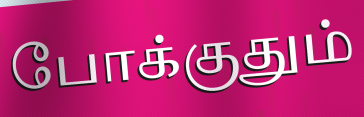
போக்குதும்